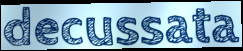
decussata